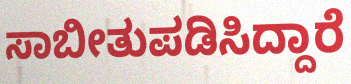
ಸಾಬೀತುಪಡಿಸಿದ್ದಾರೆ